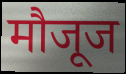
मौजूज